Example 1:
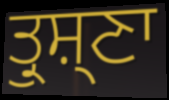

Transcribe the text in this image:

ਤ੍ਰੁਸ਼੍ਣਾ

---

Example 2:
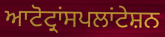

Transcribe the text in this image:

ਆਟੋਟ੍ਰਾਂਸਪਲਾਂਟੇਸ਼ਨ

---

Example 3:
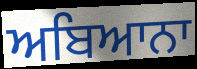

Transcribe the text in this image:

ਅਬਿਆਨਾ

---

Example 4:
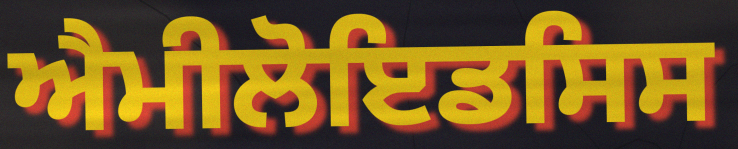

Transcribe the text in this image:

ਐਮੀਲੋਇਡਸਿਸ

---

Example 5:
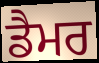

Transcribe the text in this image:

ਡੈਮਰ